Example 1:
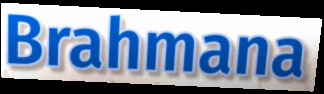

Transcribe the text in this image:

Brahmana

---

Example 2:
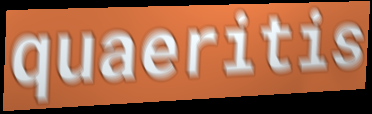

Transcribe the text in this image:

quaeritis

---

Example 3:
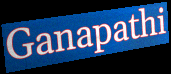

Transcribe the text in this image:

Ganapathi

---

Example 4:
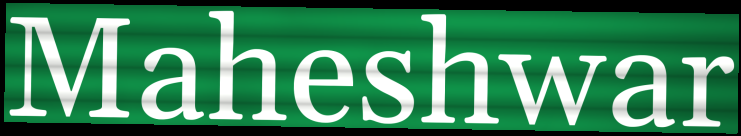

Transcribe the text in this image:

Maheshwar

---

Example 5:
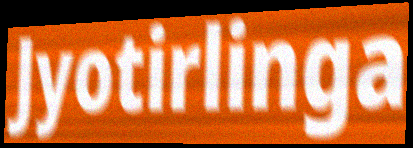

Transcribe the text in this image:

Jyotirlinga